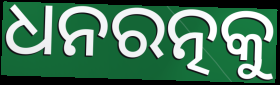
ଧନରତ୍ନକୁ